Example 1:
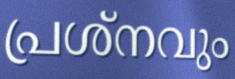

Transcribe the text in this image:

പ്രശ്നവും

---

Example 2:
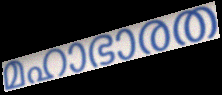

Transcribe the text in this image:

മഹാഭാരത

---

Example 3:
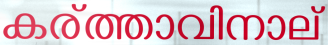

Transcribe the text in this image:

കര്ത്താവിനാല്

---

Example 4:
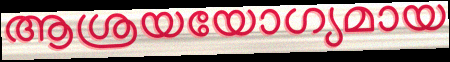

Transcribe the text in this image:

ആശ്രയയോഗ്യമായ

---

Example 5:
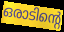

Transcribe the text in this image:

ഒരാടിന്റെ